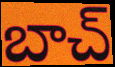
బాచ్